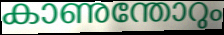
കാണുന്തോറും